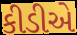
કીડીએ